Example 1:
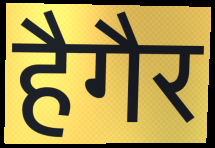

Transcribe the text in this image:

हैगैर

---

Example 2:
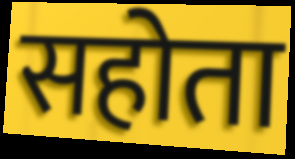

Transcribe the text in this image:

सहोता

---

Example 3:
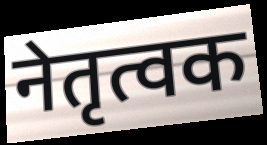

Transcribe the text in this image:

नेतृत्वक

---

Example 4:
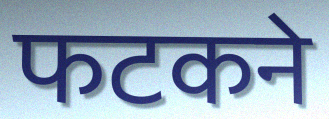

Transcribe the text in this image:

फटकने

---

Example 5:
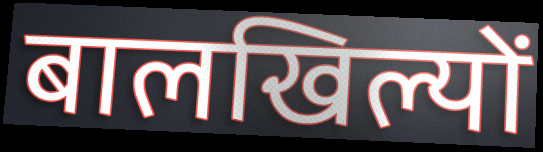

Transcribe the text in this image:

बालखिल्यों